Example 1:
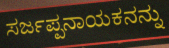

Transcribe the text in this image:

ಸರ್ಜಪ್ಪನಾಯಕನನ್ನು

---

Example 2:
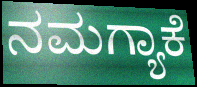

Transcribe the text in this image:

ನಮಗ್ಯಾಕೆ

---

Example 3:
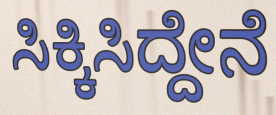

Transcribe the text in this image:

ಸಿಕ್ಕಿಸಿದ್ದೇನೆ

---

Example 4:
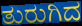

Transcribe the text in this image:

ತುರುಗಿದ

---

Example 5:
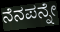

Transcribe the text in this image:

ನೆನಪನ್ನೇ